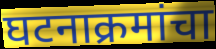
घटनाक्रमांचा